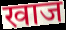
खाज